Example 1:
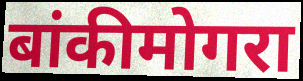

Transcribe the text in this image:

बांकीमोगरा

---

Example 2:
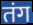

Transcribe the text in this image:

तंग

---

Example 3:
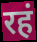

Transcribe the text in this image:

रहं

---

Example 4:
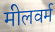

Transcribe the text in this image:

मीलवर्म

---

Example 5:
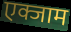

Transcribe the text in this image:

एक्जाम